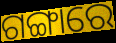
ଗଙ୍ଗାରେ